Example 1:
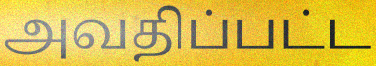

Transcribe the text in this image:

அவதிப்பட்ட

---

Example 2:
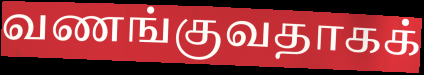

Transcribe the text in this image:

வணங்குவதாகக்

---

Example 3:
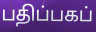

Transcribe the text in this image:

பதிப்பகப்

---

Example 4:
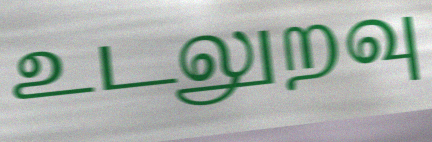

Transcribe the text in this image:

உடலுறவு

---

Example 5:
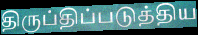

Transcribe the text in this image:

திருப்திப்படுத்திய